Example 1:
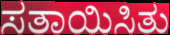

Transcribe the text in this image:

ಸತಾಯಿಸಿತು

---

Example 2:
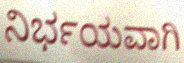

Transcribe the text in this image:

ನಿರ್ಭಯವಾಗಿ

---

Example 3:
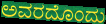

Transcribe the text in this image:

ಅವರದೊಂದು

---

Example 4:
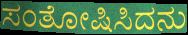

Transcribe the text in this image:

ಸಂತೋಷಿಸಿದನು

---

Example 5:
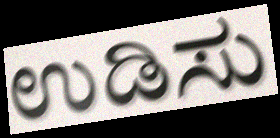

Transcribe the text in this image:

ಉಡಿಸು